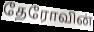
தேரோவின்